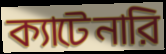
ক্যাটেনারি